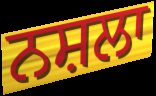
ਨਸ਼ਲਾ